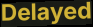
Delayed